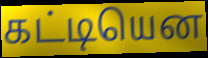
கட்டியென